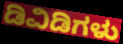
ಡಿವಿಡಿಗಳು